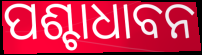
ପଶ୍ଚାଧାବନ